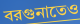
বরগুনাতেও